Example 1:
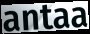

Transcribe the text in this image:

antaa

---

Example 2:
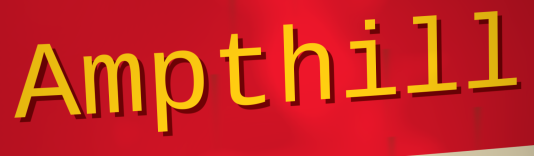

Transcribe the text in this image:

Ampthill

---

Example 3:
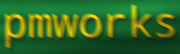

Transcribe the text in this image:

pmworks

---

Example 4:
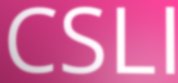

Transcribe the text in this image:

CSLI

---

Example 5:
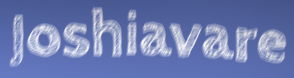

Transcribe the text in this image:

Joshiavare